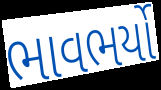
ભાવભર્યો